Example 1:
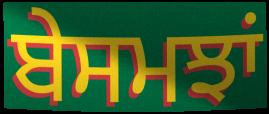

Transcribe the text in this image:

ਬੇਸਮਝਾਂ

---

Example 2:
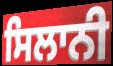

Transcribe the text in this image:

ਸਿਲਾਨੀ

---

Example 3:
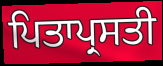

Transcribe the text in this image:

ਪਿਤਾਪ੍ਰਸਤੀ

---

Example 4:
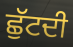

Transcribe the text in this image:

ਛੁੱਟਦੀ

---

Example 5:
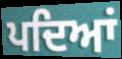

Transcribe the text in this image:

ਪਦਿਆਂ